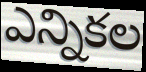
ఎన్నికల